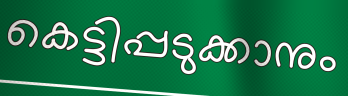
കെട്ടിപ്പടുക്കാനും